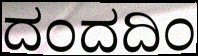
ದಂದದಿಂ